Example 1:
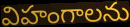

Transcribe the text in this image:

విహంగాలను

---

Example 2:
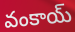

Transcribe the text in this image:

వంకాయ్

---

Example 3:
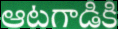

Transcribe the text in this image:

ఆటగాడికి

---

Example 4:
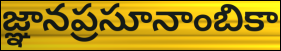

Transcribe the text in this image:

జ్ఞానప్రసూనాంబికా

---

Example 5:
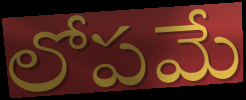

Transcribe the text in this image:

లోపమే